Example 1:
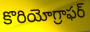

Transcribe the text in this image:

కొరియోగ్రాఫర్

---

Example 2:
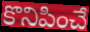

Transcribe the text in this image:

కొనిపించే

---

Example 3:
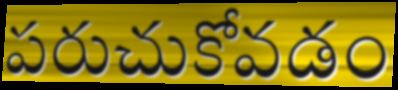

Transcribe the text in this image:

పరుచుకోవడం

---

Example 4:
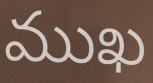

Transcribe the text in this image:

ముఖ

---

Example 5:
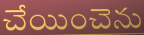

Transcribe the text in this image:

చేయించెను